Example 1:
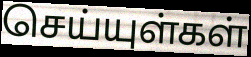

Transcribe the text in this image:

செய்யுள்கள்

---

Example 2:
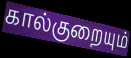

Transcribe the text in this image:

கால்குறையும்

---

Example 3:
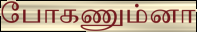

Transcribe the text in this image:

போகணும்னா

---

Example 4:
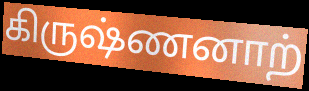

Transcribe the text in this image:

கிருஷ்ணனாற்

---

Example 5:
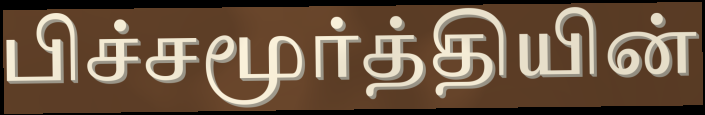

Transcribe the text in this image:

பிச்சமூர்த்தியின்